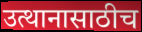
उत्थानासाठीच